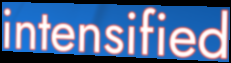
intensified